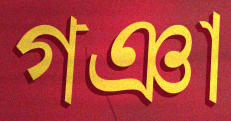
গঞা